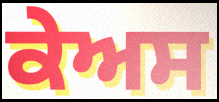
ਕੇਅਸ